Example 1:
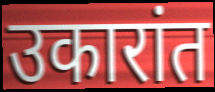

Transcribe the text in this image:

उकारांत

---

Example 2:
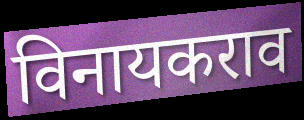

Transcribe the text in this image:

विनायकराव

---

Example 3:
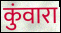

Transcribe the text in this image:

कुंवारा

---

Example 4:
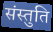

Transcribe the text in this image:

संस्तुति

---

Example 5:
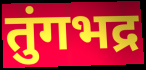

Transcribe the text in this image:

तुंगभद्र